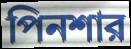
পিনশার